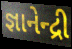
જ્ઞાનેન્દ્રી